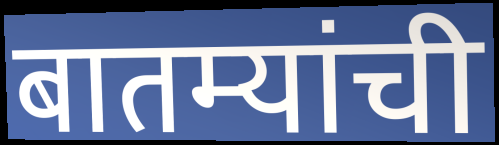
बातम्यांची